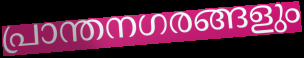
പ്രാന്തനഗരങ്ങളും